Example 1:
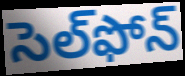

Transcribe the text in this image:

సెల్‌ఫోన్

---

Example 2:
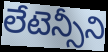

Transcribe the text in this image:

లేటెన్సీని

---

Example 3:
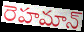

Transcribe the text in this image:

రెహమాన్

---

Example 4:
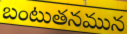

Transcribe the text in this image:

బంటుతనమున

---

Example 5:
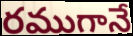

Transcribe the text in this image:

రముగానే